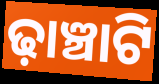
ଢ଼ାଞ୍ଚାଟି